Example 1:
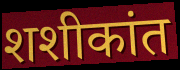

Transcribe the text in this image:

शशीकांत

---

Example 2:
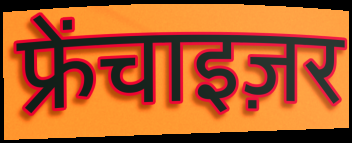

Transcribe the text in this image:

फ्रेंचाइज़र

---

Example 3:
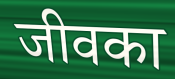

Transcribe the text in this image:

जीवका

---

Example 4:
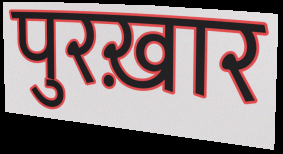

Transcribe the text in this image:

पुरख़ार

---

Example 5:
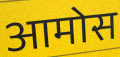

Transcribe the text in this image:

आमोस